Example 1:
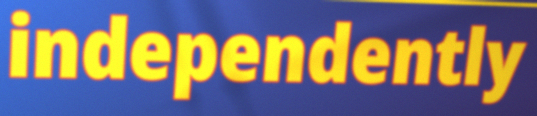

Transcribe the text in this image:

independently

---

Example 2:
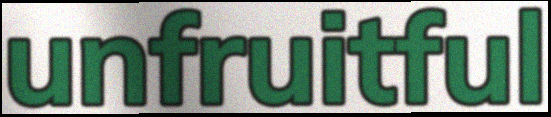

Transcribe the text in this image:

unfruitful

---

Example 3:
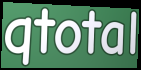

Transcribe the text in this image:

qtotal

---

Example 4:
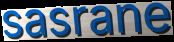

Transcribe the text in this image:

sasrane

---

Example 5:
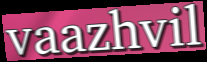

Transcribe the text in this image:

vaazhvil